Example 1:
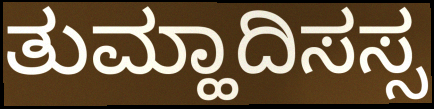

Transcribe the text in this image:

ತುಮ್ಹಾದಿಸಸ್ಸ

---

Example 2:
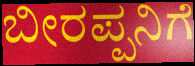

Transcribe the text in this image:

ಬೀರಪ್ಪನಿಗೆ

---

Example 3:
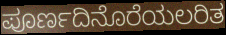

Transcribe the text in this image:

ಪೂರ್ಣದಿನೊರೆಯಲರಿತ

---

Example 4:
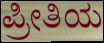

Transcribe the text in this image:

ಪ್ರೀತಿಯ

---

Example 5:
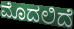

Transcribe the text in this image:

ಮೊದಲಿದೆ